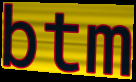
btm